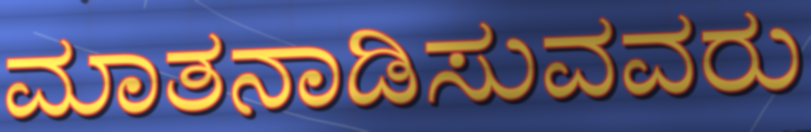
ಮಾತನಾಡಿಸುವವರು